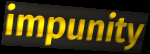
impunity